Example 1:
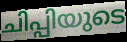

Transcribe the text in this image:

ചിപ്പിയുടെ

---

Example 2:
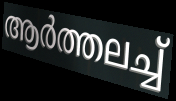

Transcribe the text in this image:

ആർത്തലച്ച്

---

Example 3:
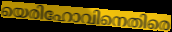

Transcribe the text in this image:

യെരിഹോവിനെതിരെ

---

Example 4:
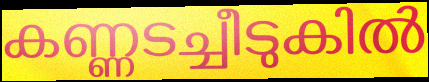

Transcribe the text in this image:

കണ്ണടച്ചീടുകിൽ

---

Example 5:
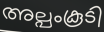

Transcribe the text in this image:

അല്പംകൂടി